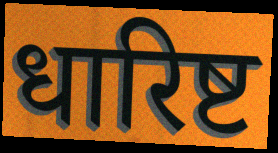
धारिष्ट